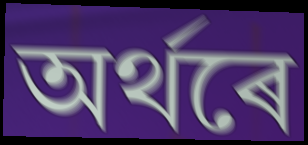
অৰ্থৰে